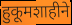
हुकूमशाहीने